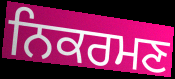
ਨਿਕਰਮਣ